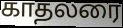
காதலரை